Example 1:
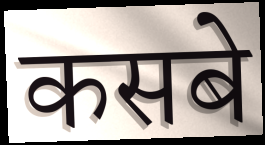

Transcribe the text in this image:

कसबे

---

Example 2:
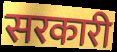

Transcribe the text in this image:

सरकारी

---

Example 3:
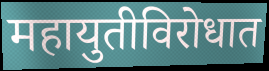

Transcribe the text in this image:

महायुतीविरोधात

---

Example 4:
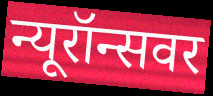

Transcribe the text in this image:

न्यूरॉन्सवर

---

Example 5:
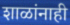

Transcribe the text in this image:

शाळांनाही